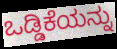
ಒಡ್ಡಿಕೆಯನ್ನು